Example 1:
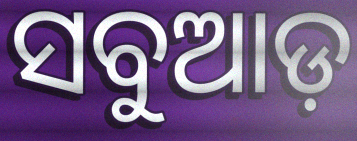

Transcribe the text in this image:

ସବୁଆଡ଼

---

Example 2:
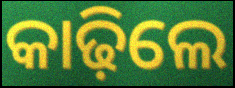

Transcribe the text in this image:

କାଢ଼ିଲେ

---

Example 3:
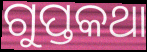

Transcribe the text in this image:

ଗୁପ୍ତକଥା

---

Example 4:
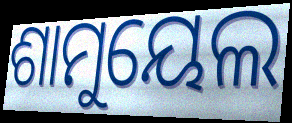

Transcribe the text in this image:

ଶାମୁୟେଲ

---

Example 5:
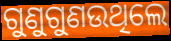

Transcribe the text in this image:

ଗୁଣୁଗୁଣଉଥିଲେ